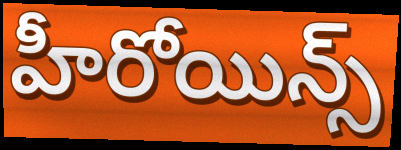
హీరోయిన్స్